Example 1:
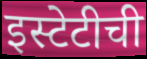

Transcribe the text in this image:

इस्टेटीची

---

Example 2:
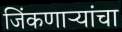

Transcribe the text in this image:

जिंकणाऱ्यांचा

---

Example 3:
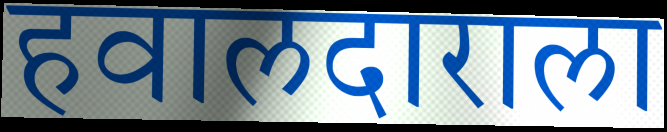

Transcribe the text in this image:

हवालदाराला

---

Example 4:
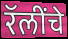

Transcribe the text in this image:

रॅलींचे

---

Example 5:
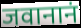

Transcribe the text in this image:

जवानानं